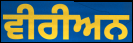
ਵੀਰੀਅਨ